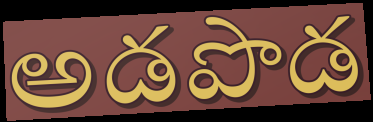
అడపొడ